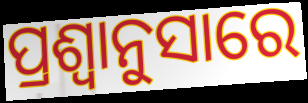
ପ୍ରଶ୍ବାନୁସାରେ